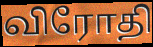
விரோதி